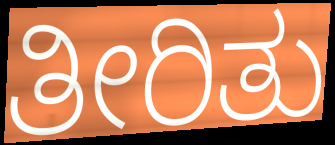
ತೀರಿತು